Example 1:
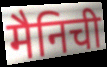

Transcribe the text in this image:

मैनिची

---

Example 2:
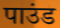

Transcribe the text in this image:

पाउंड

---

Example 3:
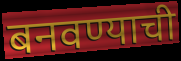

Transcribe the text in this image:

बनवण्याची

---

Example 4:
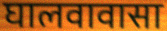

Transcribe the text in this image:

घालवावासा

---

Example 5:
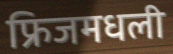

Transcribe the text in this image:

फ्रिजमधली